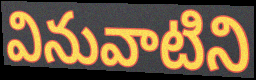
వినువాటిని